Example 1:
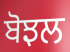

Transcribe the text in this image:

ਬੋਝਲ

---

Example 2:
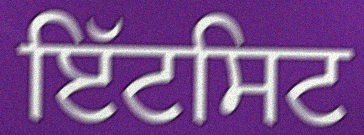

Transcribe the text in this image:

ਇੱਟਸਿਟ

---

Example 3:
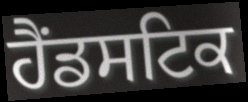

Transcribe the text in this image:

ਹੈਂਡਸਟਿਕ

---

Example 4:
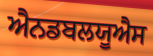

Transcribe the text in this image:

ਐਨਡਬਲਯੂਐਸ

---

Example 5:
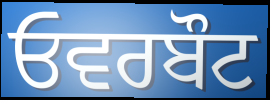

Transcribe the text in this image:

ਓਵਰਬੌਟ